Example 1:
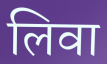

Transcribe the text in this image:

लिवा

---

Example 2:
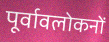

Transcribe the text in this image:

पूर्वावलोकनों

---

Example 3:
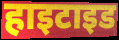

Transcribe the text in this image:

हाइटाइड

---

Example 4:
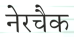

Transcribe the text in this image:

नेरचैक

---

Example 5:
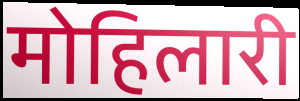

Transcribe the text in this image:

मोहिलारी